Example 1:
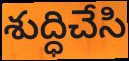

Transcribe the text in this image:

శుద్ధిచేసి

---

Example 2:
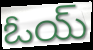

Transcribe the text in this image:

ఓయ్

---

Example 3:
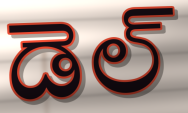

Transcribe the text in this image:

డెల్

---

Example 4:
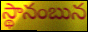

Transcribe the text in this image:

స్థానంబున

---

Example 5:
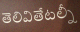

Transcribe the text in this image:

తెలివితేటల్నీ